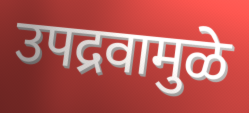
उपद्रवामुळे